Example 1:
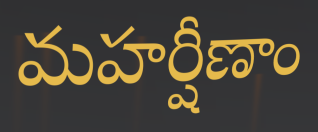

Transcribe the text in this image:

మహర్షీణాం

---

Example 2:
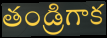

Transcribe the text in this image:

తండ్రిగాక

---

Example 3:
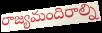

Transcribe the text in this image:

రాజ్యమందిరాల్ని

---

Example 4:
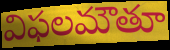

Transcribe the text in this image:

విఫలమౌతూ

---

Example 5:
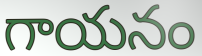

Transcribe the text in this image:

గాయనం